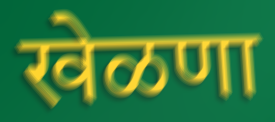
खेळणा